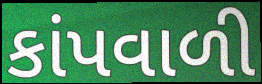
કાંપવાળી